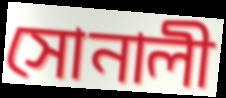
সোনালী